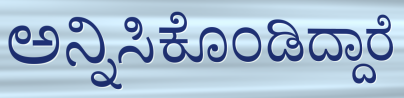
ಅನ್ನಿಸಿಕೊಂಡಿದ್ದಾರೆ